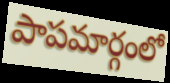
పాపమార్గంలో